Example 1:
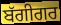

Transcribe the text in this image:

ਬੱਗੀਗਰ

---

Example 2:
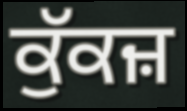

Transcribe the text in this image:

ਕੁੱਕਜ਼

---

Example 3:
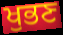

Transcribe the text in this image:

ਖੁਭਣ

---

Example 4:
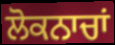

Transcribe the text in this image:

ਲੋਕਨਾਚਾਂ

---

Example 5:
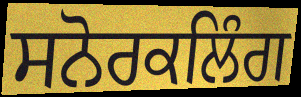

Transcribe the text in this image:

ਸਨੋਰਕਲਿੰਗ